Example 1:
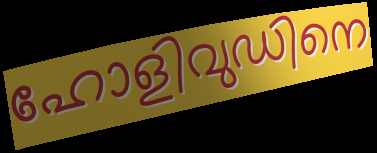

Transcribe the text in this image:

ഹോളിവുഡിനെ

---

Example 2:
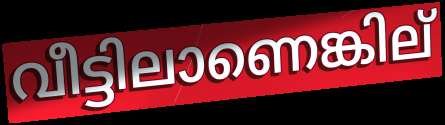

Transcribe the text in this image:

വീട്ടിലാണെങ്കില്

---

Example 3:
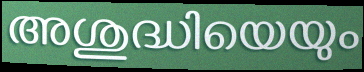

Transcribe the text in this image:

അശുദ്ധിയെയും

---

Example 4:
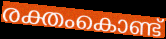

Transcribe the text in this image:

രക്തംകൊണ്ട്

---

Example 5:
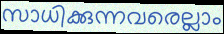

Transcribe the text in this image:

സാധിക്കുന്നവരെല്ലാം